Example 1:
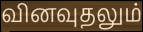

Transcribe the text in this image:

வினவுதலும்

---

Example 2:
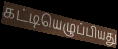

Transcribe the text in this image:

கட்டியெழுப்பியது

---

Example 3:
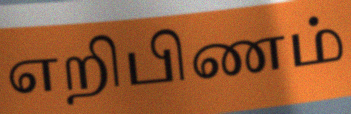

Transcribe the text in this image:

எறிபிணம்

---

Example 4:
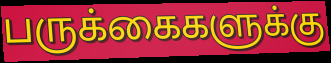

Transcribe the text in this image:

பருக்கைகளுக்கு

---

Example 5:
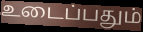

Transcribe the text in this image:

உடைப்பதும்